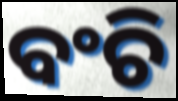
ବଂଚି